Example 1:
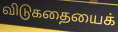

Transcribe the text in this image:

விடுகதையைக்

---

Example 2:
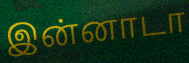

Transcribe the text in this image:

இன்னாடா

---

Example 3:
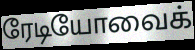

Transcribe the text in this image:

ரேடியோவைக்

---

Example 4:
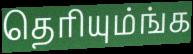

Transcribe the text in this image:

தெரியும்ங்க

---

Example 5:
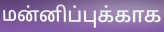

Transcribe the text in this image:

மன்னிப்புக்காக